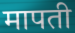
मापती